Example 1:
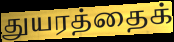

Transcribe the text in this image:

துயரத்தைக்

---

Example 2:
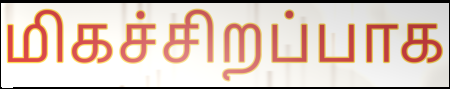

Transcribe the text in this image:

மிகச்சிறப்பாக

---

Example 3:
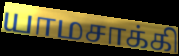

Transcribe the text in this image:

யாமசாக்கி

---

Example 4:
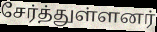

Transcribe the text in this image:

சேர்த்துள்ளனர்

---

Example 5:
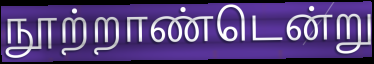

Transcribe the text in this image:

நூற்றாண்டென்று